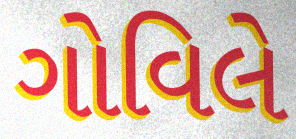
ગોવિલે